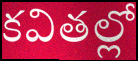
కవితల్లో